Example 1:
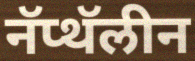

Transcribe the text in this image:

नॅप्थॅलीन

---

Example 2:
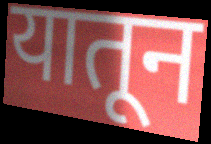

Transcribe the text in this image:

यातून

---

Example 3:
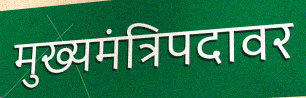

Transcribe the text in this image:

मुख्यमंत्रिपदावर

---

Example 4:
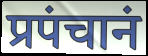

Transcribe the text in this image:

प्रपंचानं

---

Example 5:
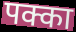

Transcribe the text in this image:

पक्का